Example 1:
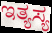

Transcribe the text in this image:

ಇತ್ಯಸ್ಯ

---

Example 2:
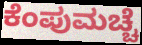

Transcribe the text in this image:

ಕೆಂಪುಮಚ್ಚೆ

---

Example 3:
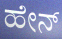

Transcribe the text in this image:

ಹೇನ್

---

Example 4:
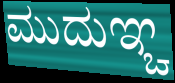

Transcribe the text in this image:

ಮುದುಞ್ಚ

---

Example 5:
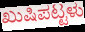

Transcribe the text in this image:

ಖುಷಿಪಟ್ಟಳು